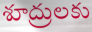
శూద్రులకు